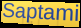
Saptami